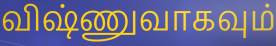
விஷ்ணுவாகவும்